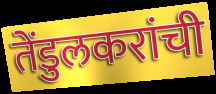
तेंडुलकरांची